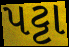
પટ્ટા